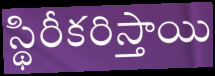
స్థిరీకరిస్తాయి